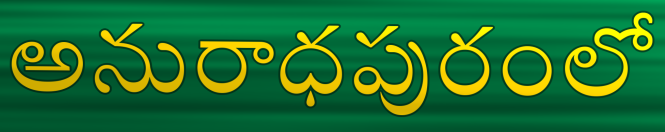
అనురాధపురంలో